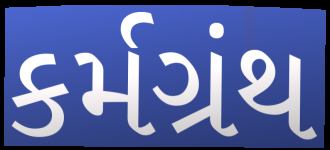
કર્મગ્રંથ